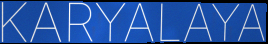
KARYALAYA